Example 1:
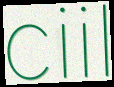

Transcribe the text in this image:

ciil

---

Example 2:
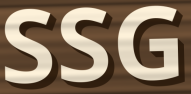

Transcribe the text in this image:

SSG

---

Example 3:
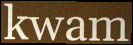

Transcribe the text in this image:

kwam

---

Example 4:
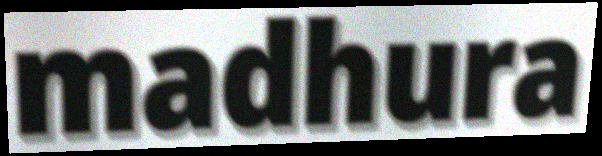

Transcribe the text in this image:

madhura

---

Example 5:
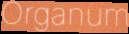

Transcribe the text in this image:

Organum